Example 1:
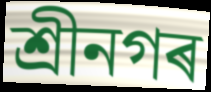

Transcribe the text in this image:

শ্ৰীনগৰ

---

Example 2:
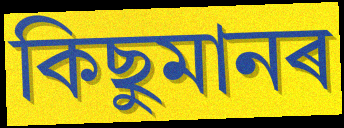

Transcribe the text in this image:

কিছুমানৰ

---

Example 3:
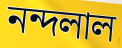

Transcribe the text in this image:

নন্দলাল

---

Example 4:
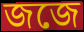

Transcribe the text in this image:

জজে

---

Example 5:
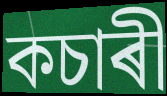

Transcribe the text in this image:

কচাৰী